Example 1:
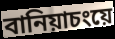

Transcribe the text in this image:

বানিয়াচংয়ে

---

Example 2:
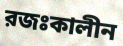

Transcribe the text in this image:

রজঃকালীন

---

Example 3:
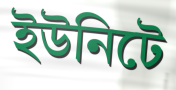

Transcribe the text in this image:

ইউনিটে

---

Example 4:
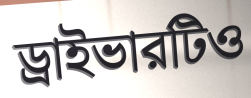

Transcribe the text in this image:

ড্রাইভারটিও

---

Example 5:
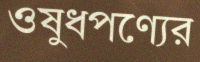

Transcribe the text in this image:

ওষুধপণ্যের